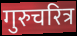
गुरुचरित्र